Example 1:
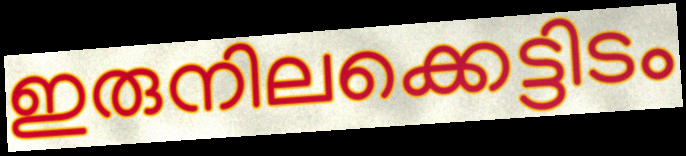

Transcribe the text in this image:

ഇരുനിലക്കെട്ടിടം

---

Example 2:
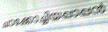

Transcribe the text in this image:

ചാക്കോച്ചിയപ്പാപ്പൻ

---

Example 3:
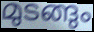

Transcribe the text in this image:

മുടങ്ങും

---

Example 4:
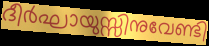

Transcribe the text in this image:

ദീർഘായുസ്സിനുവേണ്ടി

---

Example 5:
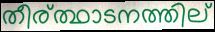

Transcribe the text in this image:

തീര്ത്ഥാടനത്തില്